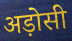
अड़ोसी